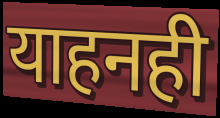
याहनही